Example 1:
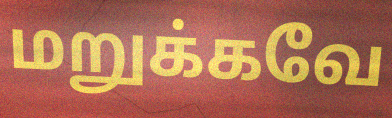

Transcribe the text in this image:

மறுக்கவே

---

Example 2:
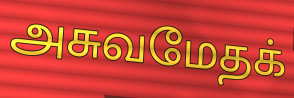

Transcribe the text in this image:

அசுவமேதக்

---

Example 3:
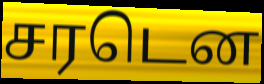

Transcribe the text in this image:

சரடென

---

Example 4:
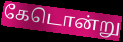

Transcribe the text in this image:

கேடொன்று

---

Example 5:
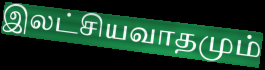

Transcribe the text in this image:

இலட்சியவாதமும்